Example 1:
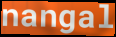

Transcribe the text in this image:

nangal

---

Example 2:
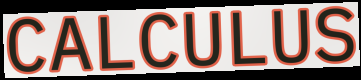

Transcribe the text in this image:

CALCULUS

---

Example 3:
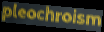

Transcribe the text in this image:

pleochroism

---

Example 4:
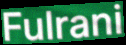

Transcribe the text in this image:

Fulrani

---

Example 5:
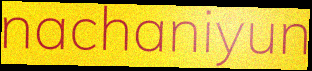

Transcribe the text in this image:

nachaniyun